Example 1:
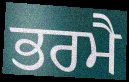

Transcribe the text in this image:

ਭਰਮੈ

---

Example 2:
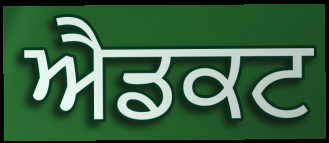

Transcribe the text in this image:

ਐਡਕਟ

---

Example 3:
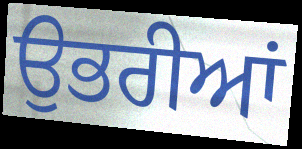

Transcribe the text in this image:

ਉਭਰੀਆਂ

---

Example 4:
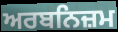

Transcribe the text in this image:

ਅਰਬਨਿਜ਼ਮ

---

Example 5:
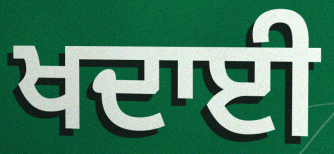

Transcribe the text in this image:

ਖਦਾਈ